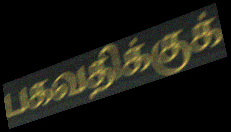
பகவதிக்குக்